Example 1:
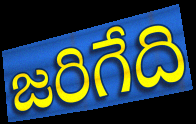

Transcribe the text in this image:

జరిగేది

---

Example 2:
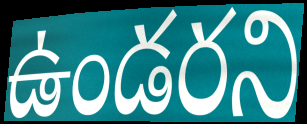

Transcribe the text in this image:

ఉండరని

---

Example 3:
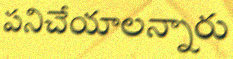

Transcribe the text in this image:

పనిచేయాలన్నారు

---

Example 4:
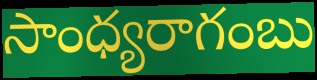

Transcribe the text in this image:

సాంధ్యరాగంబు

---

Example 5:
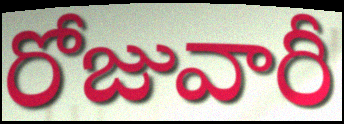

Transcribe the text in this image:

రోజువారీ